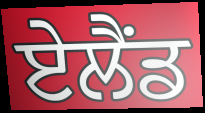
ਏਲੈਂਡ